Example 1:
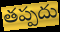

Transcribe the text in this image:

తప్పదు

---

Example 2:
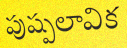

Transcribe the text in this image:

పుష్పలావిక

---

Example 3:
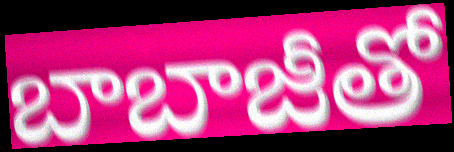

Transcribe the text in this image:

బాబాజీతో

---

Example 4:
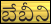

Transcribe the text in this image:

బేబీని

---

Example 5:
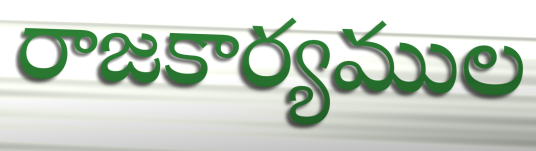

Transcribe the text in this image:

రాజకార్యముల